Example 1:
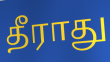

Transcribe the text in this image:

தீராது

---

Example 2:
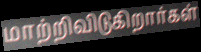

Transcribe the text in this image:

மாற்றிவிடுகிறார்கள்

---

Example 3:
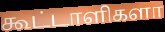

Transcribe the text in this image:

கூட்டாளிகளா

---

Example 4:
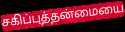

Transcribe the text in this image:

சகிப்புத்தன்மையை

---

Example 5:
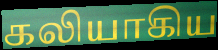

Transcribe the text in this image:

கலியாகிய